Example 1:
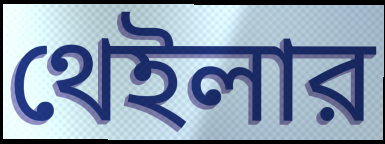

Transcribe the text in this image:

থেইলার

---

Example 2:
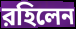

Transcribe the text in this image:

রহিলেন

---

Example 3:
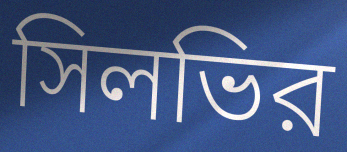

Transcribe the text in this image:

সিলভির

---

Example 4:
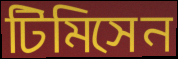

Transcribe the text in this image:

টিমিসেন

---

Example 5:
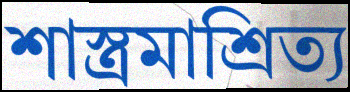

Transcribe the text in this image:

শাস্ত্রমাশ্রিত্য